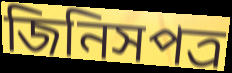
জিনিসপত্র